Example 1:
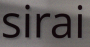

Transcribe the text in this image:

sirai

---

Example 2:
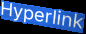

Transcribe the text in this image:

Hyperlink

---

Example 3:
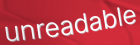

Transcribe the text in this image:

unreadable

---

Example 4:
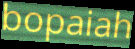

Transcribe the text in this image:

bopaiah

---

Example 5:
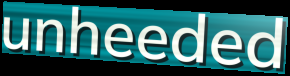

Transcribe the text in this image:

unheeded